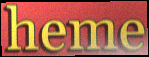
heme